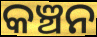
କଞ୍ଚନ